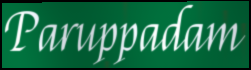
Paruppadam